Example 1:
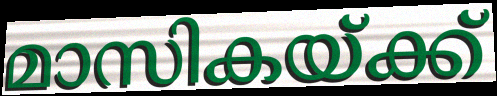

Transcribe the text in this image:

മാസികയ്ക്ക്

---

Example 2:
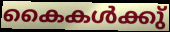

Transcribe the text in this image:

കൈകൾക്കു്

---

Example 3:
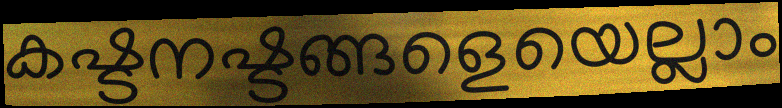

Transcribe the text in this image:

കഷ്ടനഷ്ടങ്ങളെയെല്ലാം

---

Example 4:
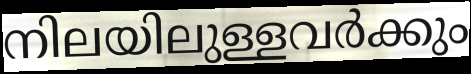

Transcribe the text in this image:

നിലയിലുള്ളവർക്കും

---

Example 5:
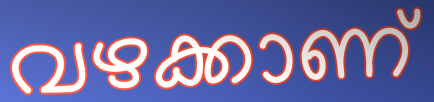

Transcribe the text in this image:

വഴക്കാണ്